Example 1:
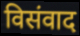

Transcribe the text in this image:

विसंवाद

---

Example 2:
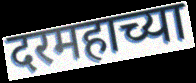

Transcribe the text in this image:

दरमहाच्या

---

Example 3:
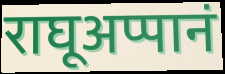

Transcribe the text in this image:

राघूअप्पानं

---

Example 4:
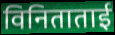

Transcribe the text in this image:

विनिताताई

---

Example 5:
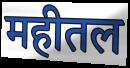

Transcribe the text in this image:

महीतल